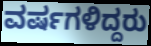
ವರ್ಷಗಳಿದ್ದರು